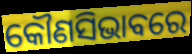
କୌଣସିଭାବରେ